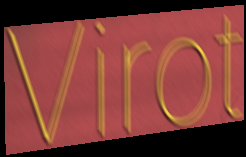
Virot